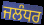
ਜਲੰਧਰ